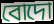
বোদো